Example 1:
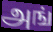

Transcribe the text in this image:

அங்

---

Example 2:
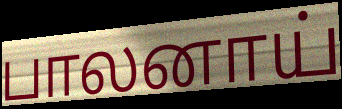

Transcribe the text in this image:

பாலனாய்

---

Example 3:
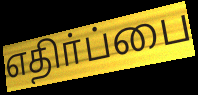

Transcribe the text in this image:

எதிர்ப்பை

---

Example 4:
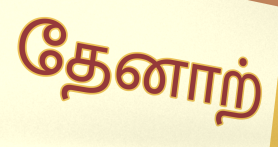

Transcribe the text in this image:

தேனாற்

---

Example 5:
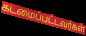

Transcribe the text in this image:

கடமைப்பட்டவர்கள்